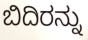
ಬಿದಿರನ್ನು